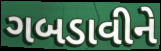
ગબડાવીને